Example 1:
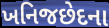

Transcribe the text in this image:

ખનિજછેદના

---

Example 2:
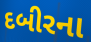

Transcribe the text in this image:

દબીરના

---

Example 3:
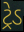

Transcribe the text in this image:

ટ્રેડ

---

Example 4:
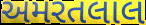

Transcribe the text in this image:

અમરતલાલ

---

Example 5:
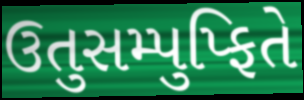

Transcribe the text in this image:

ઉતુસમ્પુપ્ફિતે